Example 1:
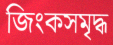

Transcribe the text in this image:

জিংকসমৃদ্ধ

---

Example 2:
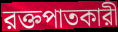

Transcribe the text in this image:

রক্তপাতকারী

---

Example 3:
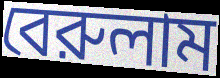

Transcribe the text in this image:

বেরুলাম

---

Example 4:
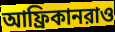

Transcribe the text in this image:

আফ্রিকানরাও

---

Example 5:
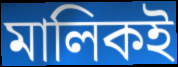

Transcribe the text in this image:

মালিকই